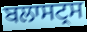
ਬਲਾਸਟ੍ਰਸ